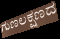
ಗುಣಲಕ್ಷಣದ